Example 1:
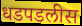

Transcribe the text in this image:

धडपडलीस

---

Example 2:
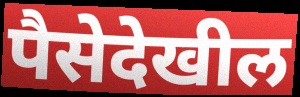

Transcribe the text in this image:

पैसेदेखील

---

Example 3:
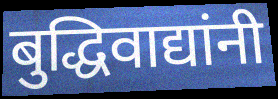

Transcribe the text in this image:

बुद्धिवाद्यांनी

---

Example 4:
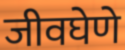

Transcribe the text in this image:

जीवघेणे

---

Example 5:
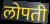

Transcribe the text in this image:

लोपती